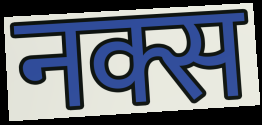
नक्स